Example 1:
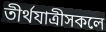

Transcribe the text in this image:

তীৰ্থযাত্ৰীসকলে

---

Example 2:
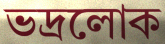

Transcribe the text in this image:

ভদ্ৰলোক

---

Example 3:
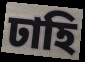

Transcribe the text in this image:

ঢাহি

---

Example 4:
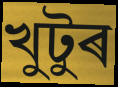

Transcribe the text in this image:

খুটুৰ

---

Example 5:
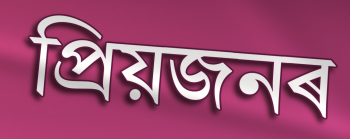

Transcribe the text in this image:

প্ৰিয়জনৰ